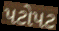
પટોપટ